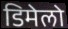
डिमेलो